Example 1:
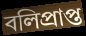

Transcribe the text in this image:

বলিপ্রাপ্ত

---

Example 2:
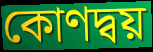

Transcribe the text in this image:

কোণদ্বয়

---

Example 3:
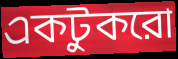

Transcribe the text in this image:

একটুকরো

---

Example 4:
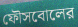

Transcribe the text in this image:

ফৌসবোলের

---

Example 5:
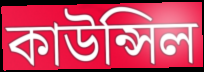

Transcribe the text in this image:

কাউন্সিল